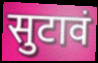
सुटावं